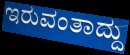
ಇರುವಂತಾದ್ದು